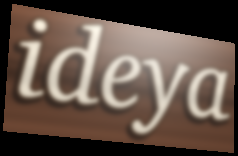
ideya